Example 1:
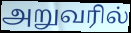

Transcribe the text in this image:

அறுவரில்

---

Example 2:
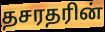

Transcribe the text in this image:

தசரதரின்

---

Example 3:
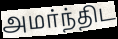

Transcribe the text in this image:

அமர்ந்திட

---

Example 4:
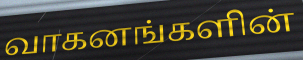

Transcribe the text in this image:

வாகனங்களின்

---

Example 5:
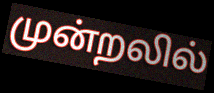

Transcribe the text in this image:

முன்றலில்